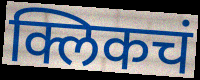
क्लिकचं